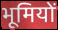
भूमियों